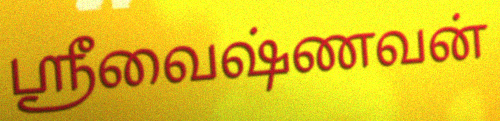
ஸ்ரீவைஷ்ணவன்